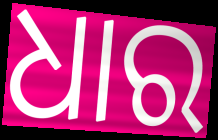
ଧାର